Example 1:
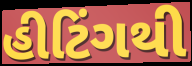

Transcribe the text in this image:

હીટિંગથી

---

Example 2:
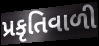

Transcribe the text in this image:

પ્રકૃતિવાળી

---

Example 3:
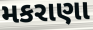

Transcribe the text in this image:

મકરાણા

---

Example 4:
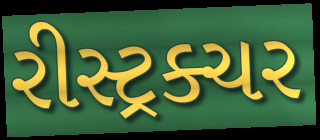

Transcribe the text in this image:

રીસ્ટ્રક્ચર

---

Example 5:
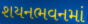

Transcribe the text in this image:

શયનભવનમાં